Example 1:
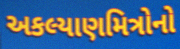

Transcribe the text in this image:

અકલ્યાણમિત્રોનો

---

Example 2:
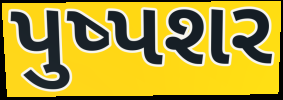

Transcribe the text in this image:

પુષ્પશર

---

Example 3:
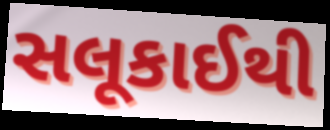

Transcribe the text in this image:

સલૂકાઈથી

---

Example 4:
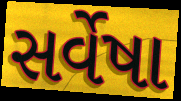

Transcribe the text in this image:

સર્વેષા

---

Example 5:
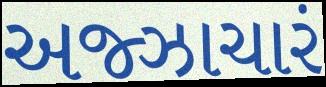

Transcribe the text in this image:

અજ્ઝાચારં